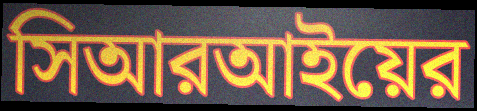
সিআরআইয়ের